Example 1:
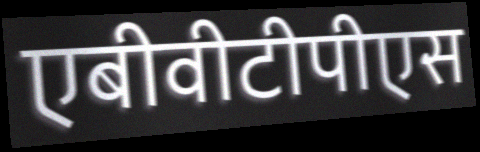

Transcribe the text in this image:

एबीवीटीपीएस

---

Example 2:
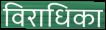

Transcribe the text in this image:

विराधिका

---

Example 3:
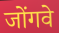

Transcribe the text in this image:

जोंगवे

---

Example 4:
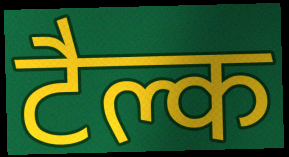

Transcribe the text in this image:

टैल्क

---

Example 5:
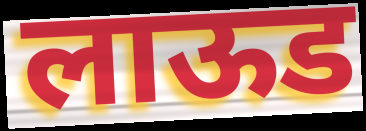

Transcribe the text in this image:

लाऊड